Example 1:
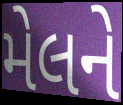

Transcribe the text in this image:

મેલને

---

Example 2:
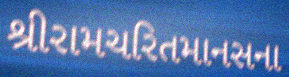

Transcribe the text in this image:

શ્રીરામચરિતમાનસના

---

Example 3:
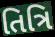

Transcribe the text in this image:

તિત્રિ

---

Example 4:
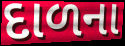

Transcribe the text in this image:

દાળના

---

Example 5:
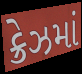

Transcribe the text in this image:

ક્રેઝમાં